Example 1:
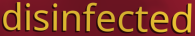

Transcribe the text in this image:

disinfected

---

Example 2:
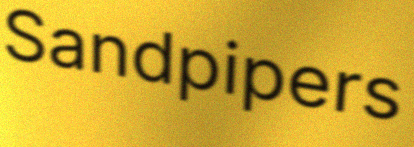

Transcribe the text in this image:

Sandpipers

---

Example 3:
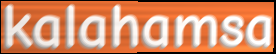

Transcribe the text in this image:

kalahamsa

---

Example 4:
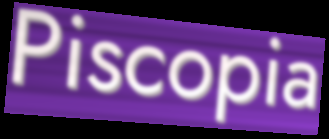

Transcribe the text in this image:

Piscopia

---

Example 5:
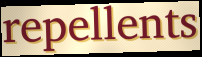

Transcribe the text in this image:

repellents